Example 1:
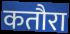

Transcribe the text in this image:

कतौरा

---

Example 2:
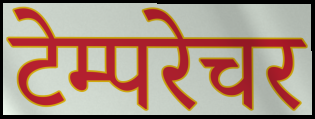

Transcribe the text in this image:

टेम्परेचर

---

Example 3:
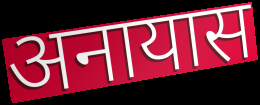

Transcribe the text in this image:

अनायास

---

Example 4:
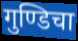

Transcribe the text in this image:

गुण्डिचा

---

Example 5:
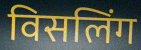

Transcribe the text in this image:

विसलिंग